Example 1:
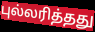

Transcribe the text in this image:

புல்லரித்தது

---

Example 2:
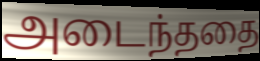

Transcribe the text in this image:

அடைந்ததை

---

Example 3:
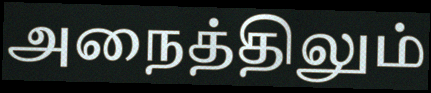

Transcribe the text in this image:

அநைத்திலும்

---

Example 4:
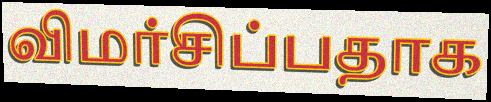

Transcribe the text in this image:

விமர்சிப்பதாக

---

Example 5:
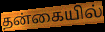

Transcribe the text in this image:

தன்கையில்